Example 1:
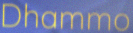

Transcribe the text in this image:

Dhammo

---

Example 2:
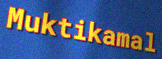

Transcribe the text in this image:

Muktikamal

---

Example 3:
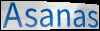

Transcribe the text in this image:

Asanas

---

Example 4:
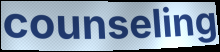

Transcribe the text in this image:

counseling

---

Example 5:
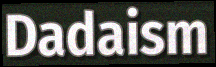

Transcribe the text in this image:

Dadaism